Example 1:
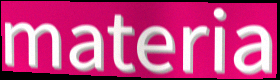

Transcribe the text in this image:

materia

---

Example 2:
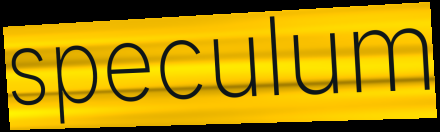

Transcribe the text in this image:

speculum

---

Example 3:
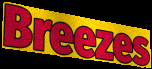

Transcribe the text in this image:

Breezes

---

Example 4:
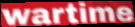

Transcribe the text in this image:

wartime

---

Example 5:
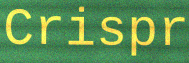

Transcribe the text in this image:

Crispr